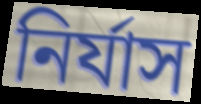
নিৰ্যাস